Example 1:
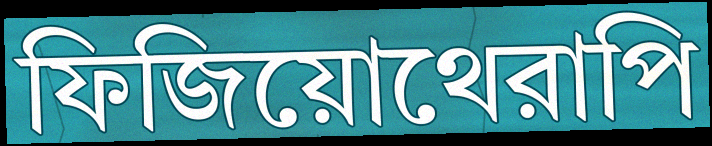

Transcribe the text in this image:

ফিজিয়োথেরাপি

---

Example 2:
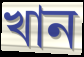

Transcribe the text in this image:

খান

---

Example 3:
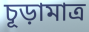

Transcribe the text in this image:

চূড়ামাত্র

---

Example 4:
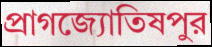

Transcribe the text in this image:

প্রাগজ্যোতিষপুর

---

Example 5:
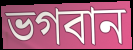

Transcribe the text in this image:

ভগবান